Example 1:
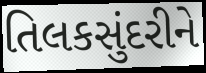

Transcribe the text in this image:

તિલકસુંદરીને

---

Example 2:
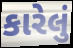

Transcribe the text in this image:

કારેલું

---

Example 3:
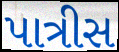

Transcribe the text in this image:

પાત્રીસ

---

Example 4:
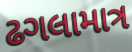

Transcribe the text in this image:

ઢગલામાત્ર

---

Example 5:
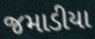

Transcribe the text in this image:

જમાડીયા